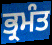
ਭ੍ਰਮੰਤ